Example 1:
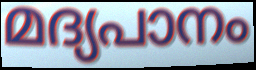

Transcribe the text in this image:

മദ്യപാനം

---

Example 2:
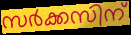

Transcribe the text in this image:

സർക്കസിന്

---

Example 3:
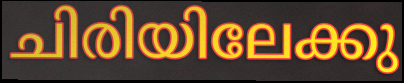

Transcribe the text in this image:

ചിരിയിലേക്കു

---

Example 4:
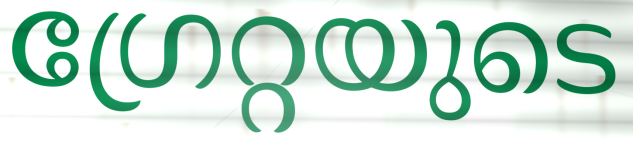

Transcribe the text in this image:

ഗ്രേറ്റയുടെ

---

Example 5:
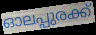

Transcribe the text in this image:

ഓലപ്പുരക്ക്